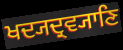
ਖਦ੍ਯਦ੍ਰਵ੍ਯਾਣਿ